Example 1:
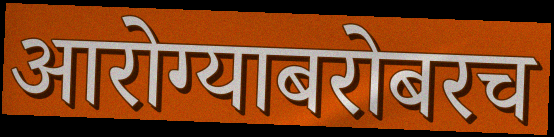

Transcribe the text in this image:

आरोग्याबरोबरच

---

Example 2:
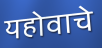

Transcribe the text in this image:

यहोवाचे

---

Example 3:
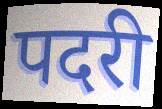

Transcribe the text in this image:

पदरी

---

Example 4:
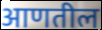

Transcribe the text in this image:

आणतील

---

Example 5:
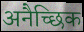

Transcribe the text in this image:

अनैच्छिक